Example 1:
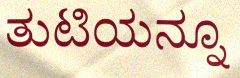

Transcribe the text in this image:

ತುಟಿಯನ್ನೂ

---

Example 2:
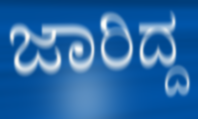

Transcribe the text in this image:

ಜಾರಿದ್ದ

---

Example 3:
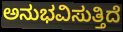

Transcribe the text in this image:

ಅನುಭವಿಸುತ್ತಿದೆ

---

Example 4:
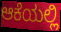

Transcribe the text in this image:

ಆಕೆಯಲ್ಲಿ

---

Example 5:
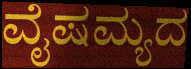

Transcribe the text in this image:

ವೈಷಮ್ಯದ